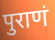
पुराणं